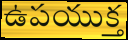
ఉపయుక్త